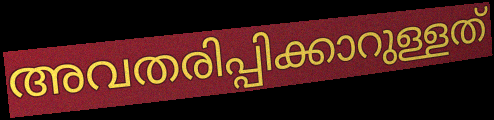
അവതരിപ്പിക്കാറുള്ളത്